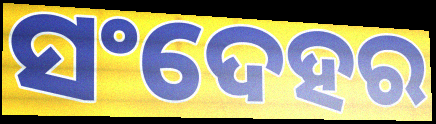
ସଂଦେହର